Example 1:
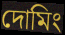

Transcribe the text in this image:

দোমিং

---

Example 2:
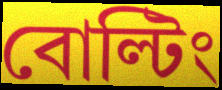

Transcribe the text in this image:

বোল্টিং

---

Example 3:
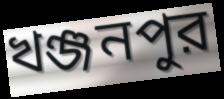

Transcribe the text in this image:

খঞ্জনপুর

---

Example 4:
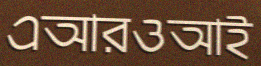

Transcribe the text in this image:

এআরওআই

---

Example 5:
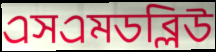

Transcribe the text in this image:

এসএমডব্লিউ